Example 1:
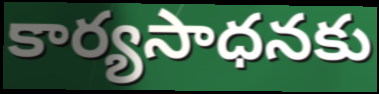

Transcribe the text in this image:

కార్యసాధనకు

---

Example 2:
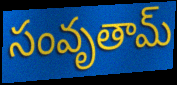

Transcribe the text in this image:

సంవృతామ్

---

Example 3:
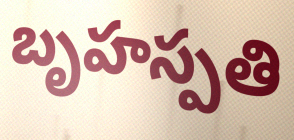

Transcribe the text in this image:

బృహస్పతి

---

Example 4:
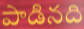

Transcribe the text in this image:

పాడినది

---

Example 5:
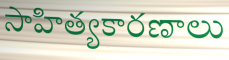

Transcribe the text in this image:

సాహిత్యకారణాలు